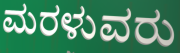
ಮರಳುವರು